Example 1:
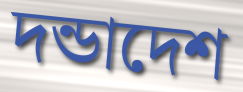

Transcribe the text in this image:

দন্ডাদেশ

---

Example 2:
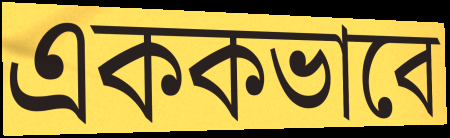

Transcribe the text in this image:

এককভাবে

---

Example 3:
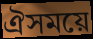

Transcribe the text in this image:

ঐসময়ে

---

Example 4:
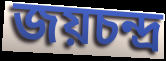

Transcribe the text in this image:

জয়চন্দ্র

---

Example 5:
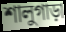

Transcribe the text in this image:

শালুগাড়া